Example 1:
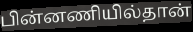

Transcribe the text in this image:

பின்னணியில்தான்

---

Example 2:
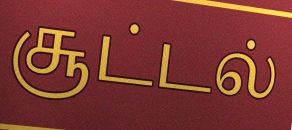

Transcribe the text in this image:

சூட்டல்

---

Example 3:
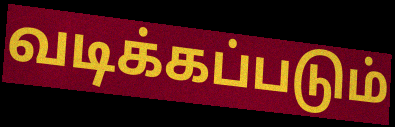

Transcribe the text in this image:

வடிக்கப்படும்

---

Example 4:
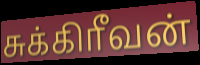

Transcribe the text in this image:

சுக்கிரீவன்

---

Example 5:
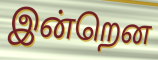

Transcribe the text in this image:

இன்றென